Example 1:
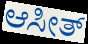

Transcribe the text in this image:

ಆಸೀತ್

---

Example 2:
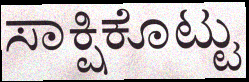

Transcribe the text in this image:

ಸಾಕ್ಷಿಕೊಟ್ಟು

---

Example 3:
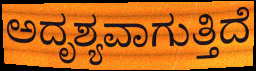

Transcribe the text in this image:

ಅದೃಶ್ಯವಾಗುತ್ತಿದೆ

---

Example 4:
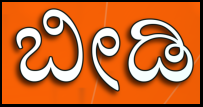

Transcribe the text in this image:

ಬೀಡಿ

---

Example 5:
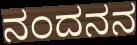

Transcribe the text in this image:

ನಂದನನ